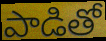
పాడితో